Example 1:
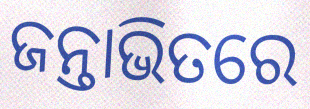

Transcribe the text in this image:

ଜନ୍ତାଭିତରେ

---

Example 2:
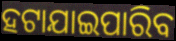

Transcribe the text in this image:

ହଟାଯାଇପାରିବ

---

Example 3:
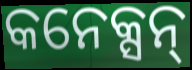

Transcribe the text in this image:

କନେକ୍ସନ୍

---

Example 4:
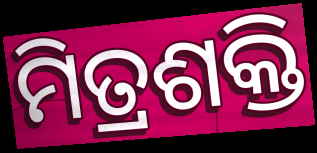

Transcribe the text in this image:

ମିତ୍ରଶକ୍ତି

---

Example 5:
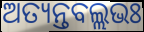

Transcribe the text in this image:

ଅତ୍ୟନ୍ତବଲ୍ଲଭଃ